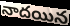
నాదయిన